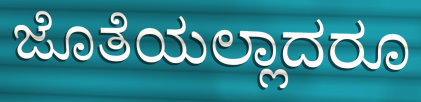
ಜೊತೆಯಲ್ಲಾದರೂ